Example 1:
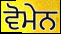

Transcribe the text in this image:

ਵੋਮੇਨ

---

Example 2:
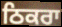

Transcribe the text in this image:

ਠਿਕਰਾ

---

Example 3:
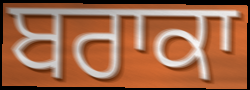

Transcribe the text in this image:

ਬਰਾਕਾ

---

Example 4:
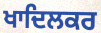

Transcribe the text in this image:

ਖਾਦਿਲਕਰ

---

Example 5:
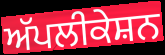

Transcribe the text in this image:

ਅੱਪਲੀਕੇਸ਼ਨ